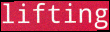
lifting